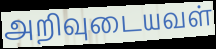
அறிவுடையவள்